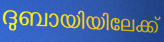
ദുബായിയിലേക്ക്